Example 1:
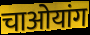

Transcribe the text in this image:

चाओयांग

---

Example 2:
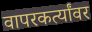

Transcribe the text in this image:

वापरकर्त्यांवर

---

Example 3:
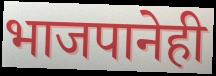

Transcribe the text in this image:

भाजपानेही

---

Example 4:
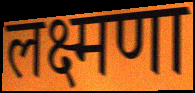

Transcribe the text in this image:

लक्ष्मणा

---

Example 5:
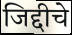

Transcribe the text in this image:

जिद्दीचे